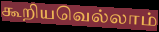
கூறியவெல்லாம்